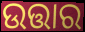
ଉତ୍ତାର